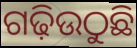
ଗଢ଼ିଉଠୁଛି